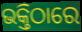
ଭକ୍ତିଠାରେ